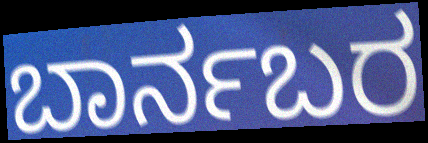
ಬಾರ್ನಬರ